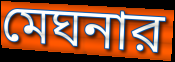
মেঘনার